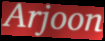
Arjoon